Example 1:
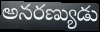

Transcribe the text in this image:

అనరణ్యుడు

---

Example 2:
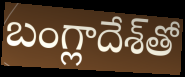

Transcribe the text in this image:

బంగ్లాదేశ్‌తో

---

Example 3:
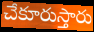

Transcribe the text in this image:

చేకూరుస్తారు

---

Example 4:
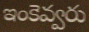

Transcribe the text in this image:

ఇంకెవ్వరు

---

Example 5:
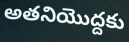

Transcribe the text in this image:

అతనియొద్దకు